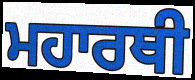
ਮਹਾਰਥੀ